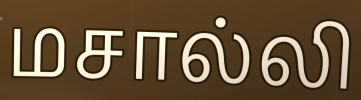
மசால்லி